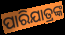
ପାରିଯାତ୍ରଙ୍କ